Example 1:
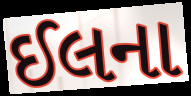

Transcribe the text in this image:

ઈલના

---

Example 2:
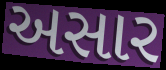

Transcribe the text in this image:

અસાર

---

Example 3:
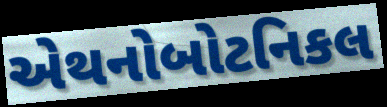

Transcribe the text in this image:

એથનોબોટનિકલ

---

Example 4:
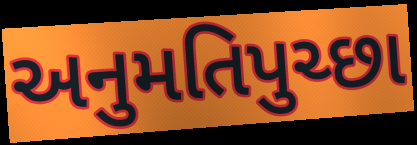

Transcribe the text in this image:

અનુમતિપુચ્છા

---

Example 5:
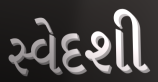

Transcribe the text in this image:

સ્વેદશી